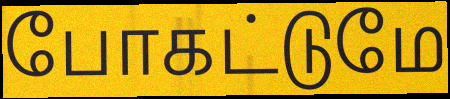
போகட்டுமே